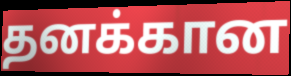
தனக்கான